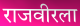
राजवीरला